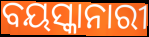
ବୟସ୍କାନାରୀ